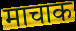
माचाक